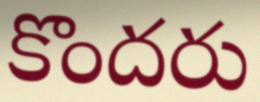
కొందరు